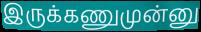
இருக்கணுமுன்னு